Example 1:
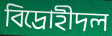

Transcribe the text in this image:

বিদ্রোহীদল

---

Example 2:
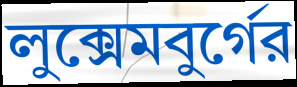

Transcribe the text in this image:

লুক্সেমবুর্গের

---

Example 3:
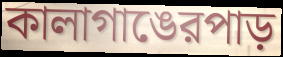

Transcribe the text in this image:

কালাগাঙেরপাড়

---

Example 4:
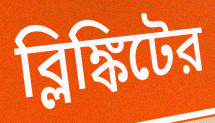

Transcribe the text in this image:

ব্লিঙ্কিটের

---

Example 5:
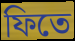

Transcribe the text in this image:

ফিতে